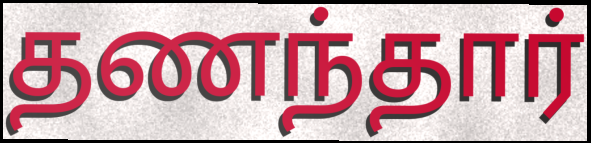
தணந்தார்